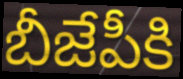
బీజేపీకి